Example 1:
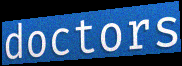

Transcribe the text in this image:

doctors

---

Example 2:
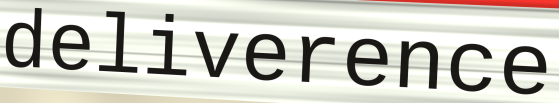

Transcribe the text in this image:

deliverence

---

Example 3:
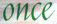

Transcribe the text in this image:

once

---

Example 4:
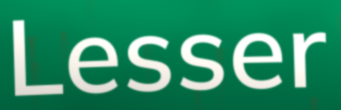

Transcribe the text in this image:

Lesser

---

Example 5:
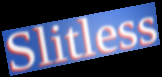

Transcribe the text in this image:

Slitless